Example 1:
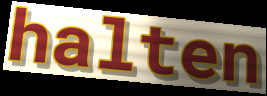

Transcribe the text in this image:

halten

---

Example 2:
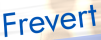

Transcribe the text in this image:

Frevert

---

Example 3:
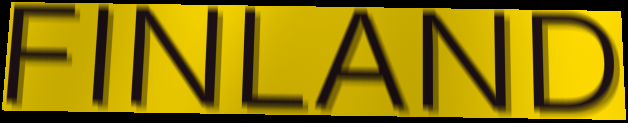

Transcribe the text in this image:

FINLAND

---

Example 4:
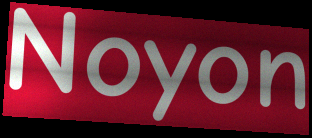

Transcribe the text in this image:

Noyon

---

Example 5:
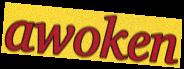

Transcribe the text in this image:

awoken